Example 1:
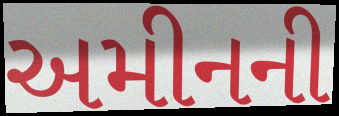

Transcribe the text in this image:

અમીનની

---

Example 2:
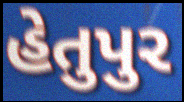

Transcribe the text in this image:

હેતુપુર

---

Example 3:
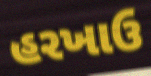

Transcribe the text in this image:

હરખાઉ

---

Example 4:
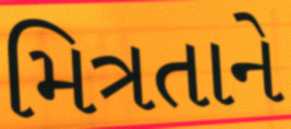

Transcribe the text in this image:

મિત્રતાને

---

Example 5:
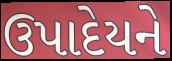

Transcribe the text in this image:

ઉપાદેયને